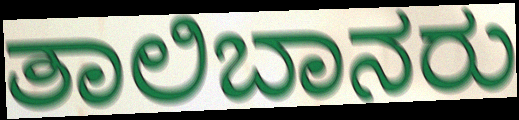
ತಾಲಿಬಾನರು